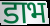
डाभ